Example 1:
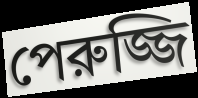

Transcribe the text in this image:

পেরুজ্জি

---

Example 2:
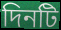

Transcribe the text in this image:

দিনটি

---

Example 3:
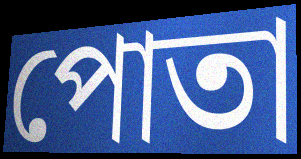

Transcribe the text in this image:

পোতা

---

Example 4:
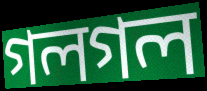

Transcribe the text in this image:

গলগল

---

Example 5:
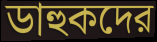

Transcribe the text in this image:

ডাহুকদের